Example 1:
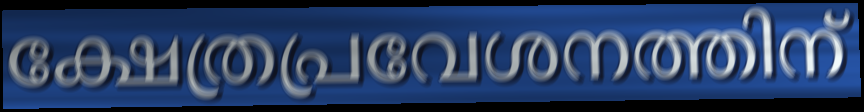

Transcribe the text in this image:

ക്ഷേത്രപ്രവേശനത്തിന്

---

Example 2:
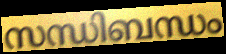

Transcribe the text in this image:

സന്ധിബന്ധം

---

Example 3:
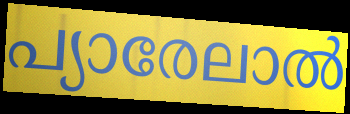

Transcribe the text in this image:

പ്യാരേലാൽ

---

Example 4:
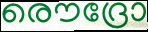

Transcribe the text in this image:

രൌദ്രോ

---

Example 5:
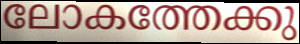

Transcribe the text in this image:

ലോകത്തേക്കു